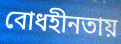
বোধহীনতায়